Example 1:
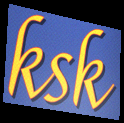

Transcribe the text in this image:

ksk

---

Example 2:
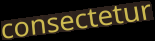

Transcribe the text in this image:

consectetur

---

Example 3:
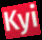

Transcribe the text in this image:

Kyi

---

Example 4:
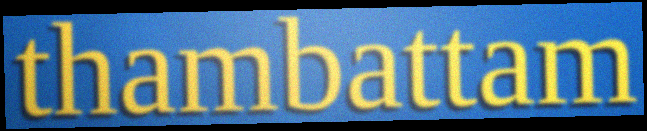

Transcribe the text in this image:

thambattam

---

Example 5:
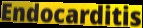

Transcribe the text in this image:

Endocarditis